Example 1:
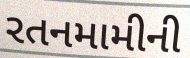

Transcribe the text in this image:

રતનમામીની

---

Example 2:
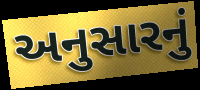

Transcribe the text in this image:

અનુસારનું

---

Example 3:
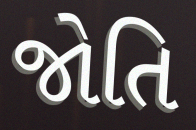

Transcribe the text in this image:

જોતિ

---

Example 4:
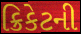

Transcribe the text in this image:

ક્રિકેટની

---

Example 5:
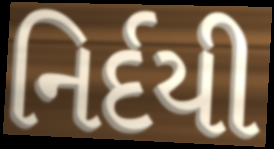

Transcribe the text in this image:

નિર્દયી